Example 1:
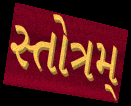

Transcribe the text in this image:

સ્તોત્રમ્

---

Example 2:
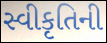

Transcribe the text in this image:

સ્વીકૃતિની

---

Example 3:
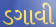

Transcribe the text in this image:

ડગાવી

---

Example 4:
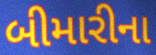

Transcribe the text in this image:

બીમારીના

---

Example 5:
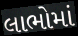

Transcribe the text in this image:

લાભોમાં